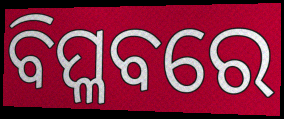
ବିପ୍ଳବରେ